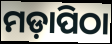
ମଡ଼ାପିଠା